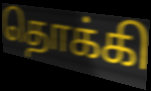
தொக்கி